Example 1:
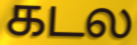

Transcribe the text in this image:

கடல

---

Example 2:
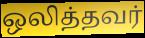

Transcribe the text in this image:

ஒலித்தவர்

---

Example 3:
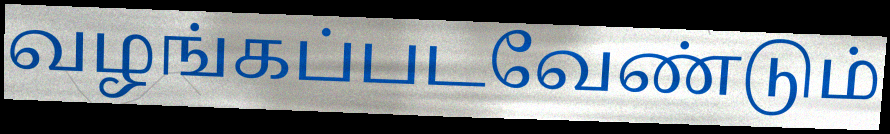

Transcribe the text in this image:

வழங்கப்படவேண்டும்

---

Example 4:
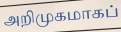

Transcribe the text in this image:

அறிமுகமாகப்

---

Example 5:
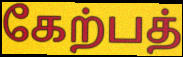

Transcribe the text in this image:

கேற்பத்